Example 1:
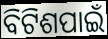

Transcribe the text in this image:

ବିଟିଶପାଇଁ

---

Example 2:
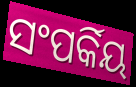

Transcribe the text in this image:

ସଂପର୍କିୟ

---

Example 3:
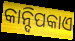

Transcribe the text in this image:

କାନ୍ଦିପକାଏ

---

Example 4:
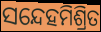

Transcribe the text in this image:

ସନ୍ଦେହମିଶ୍ରିତ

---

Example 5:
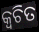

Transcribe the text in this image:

କ୍ବଚିତ